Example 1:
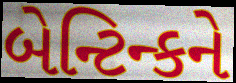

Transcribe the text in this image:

બેન્ટિન્કને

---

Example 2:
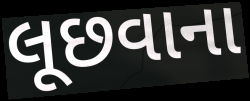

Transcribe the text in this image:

લૂછવાના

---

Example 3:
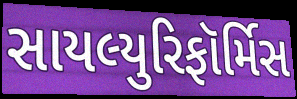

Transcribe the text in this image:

સાયલ્યુરિફૉર્મિસ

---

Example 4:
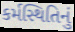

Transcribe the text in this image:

કર્મસ્થિતિનું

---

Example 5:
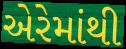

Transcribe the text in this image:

એરેમાંથી